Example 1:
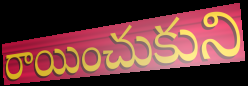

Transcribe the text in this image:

రాయించుకుని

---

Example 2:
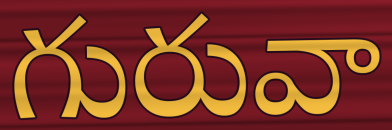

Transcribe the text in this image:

గురువా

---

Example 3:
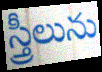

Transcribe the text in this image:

స్త్రీలును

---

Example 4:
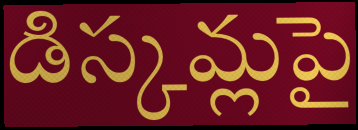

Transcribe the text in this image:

డిస్కమ్లపై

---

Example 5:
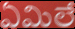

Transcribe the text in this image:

ఏమిలే